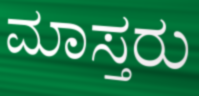
ಮಾಸ್ತರು